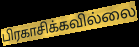
பிரகாசிக்கவில்லை